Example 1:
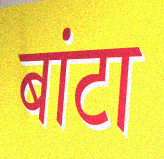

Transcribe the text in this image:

बांटा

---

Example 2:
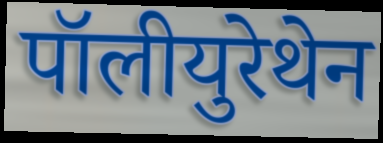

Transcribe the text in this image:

पॉलीयुरेथेन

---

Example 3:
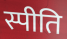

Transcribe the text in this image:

स्पीति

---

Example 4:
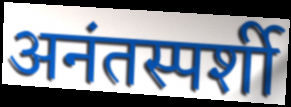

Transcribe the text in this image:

अनंतस्पर्शी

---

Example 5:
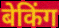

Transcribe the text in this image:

बेकिंग